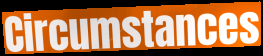
Circumstances